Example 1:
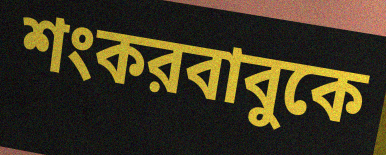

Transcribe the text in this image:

শংকরবাবুকে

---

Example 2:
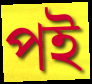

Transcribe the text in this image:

পই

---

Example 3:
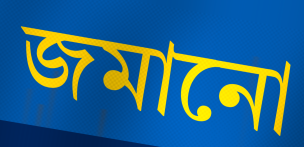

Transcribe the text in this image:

জমানো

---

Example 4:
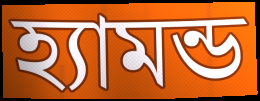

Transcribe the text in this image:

হ্যামন্ড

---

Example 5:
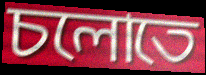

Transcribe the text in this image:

চলোতে